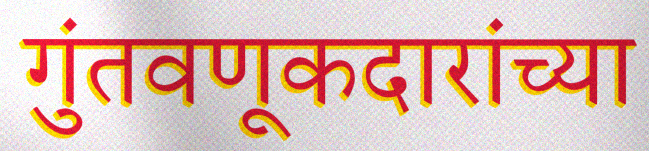
गुंतवणूकदारांच्या